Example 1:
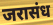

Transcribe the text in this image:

जरासंध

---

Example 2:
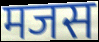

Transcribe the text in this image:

मजस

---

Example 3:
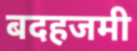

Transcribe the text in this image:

बदहजमी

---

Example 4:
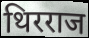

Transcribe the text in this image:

थिरराज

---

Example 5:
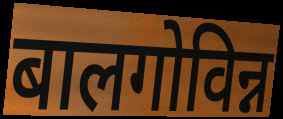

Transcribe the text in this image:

बालगोविन्न